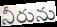
నీరును